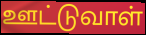
ஊட்டுவாள்